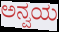
ಅನ್ವಯ